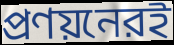
প্রণয়নেরই